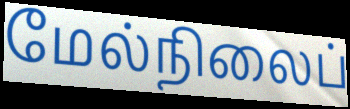
மேல்நிலைப்